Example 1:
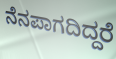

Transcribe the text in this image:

ನೆನಪಾಗದಿದ್ದರೆ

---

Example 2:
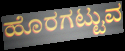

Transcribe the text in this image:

ಹೊರಗಟ್ಟುವ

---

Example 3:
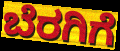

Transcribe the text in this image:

ಬೆರಗಿಗೆ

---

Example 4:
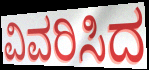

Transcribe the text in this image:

ವಿವರಿಸಿದ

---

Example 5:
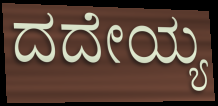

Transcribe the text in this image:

ದದೇಯ್ಯ